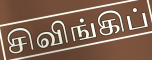
சிவிங்கிப்